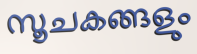
സൂചകങ്ങളും